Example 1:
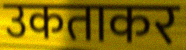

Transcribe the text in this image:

उकताकर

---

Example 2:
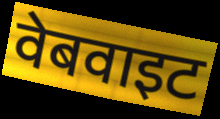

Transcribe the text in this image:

वेबवाइट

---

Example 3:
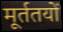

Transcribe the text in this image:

मूर्ततयों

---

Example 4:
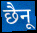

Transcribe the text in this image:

छैनू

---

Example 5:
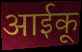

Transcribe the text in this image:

आईकू